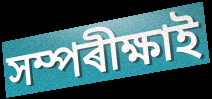
সম্পৰীক্ষাই